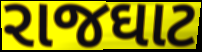
રાજઘાટ